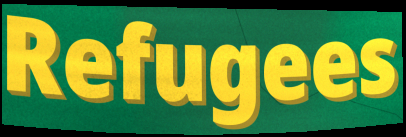
Refugees